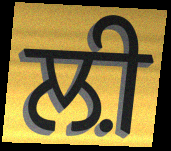
ਲ਼ੀ